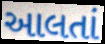
આલતાં